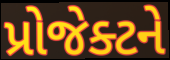
પ્રોજેક્ટને